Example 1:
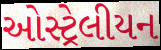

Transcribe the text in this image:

ઓસ્ટ્રેલીયન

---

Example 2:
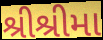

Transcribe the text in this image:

શ્રીશ્રીમા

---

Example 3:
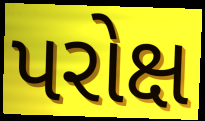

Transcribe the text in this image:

પરોક્ષ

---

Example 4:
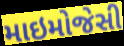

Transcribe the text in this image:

માઇમોજેસી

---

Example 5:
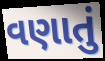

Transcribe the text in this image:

વણાતું